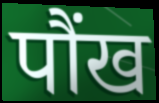
पौंख